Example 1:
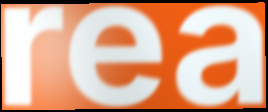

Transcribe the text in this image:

rea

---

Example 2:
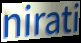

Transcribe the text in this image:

nirati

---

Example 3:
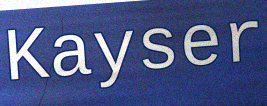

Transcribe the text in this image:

Kayser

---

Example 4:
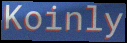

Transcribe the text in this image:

Koinly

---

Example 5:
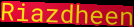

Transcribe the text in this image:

Riazdheen